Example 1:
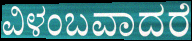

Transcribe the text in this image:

ವಿಳಂಬವಾದರೆ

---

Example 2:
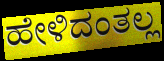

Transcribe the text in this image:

ಹೇಳಿದಂತಲ್ಲ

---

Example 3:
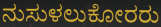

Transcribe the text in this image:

ನುಸುಳಲುಕೋರರು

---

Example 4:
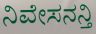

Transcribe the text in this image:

ನಿವೇಸನನ್ತಿ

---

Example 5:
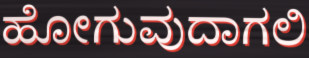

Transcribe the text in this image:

ಹೋಗುವುದಾಗಲಿ